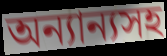
অন্যান্যসহ